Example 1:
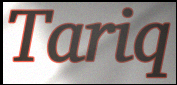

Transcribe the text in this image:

Tariq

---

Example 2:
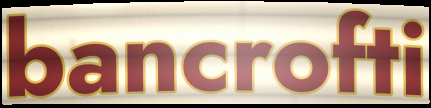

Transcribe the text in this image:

bancrofti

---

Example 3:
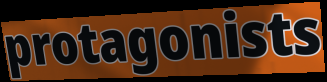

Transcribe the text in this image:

protagonists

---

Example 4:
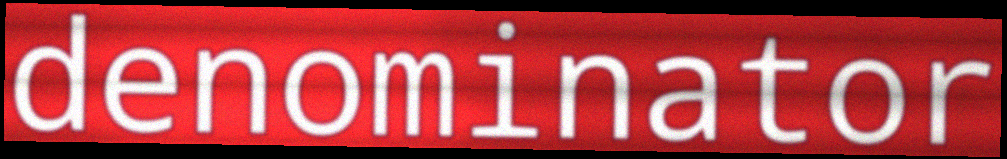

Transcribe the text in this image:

denominator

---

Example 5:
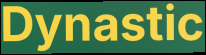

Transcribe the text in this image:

Dynastic